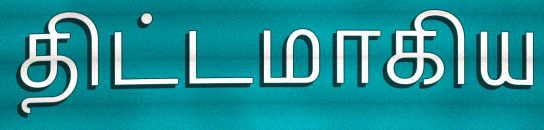
திட்டமாகிய